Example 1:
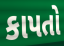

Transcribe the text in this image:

કાપતો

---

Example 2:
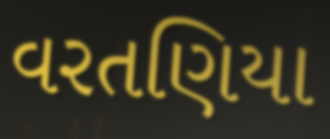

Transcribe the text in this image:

વરતણિયા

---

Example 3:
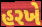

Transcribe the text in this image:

હરખે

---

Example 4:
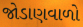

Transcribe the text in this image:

જોડાણવાળો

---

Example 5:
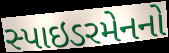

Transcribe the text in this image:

સ્પાઇડરમેનનો